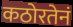
कठोरतेनं